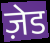
ज़ेड